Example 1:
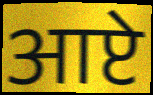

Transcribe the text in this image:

आप्टे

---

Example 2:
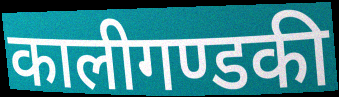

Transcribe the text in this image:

कालीगण्डकी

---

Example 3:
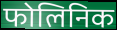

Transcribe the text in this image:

फोलिनिक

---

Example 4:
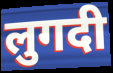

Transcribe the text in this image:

लुगदी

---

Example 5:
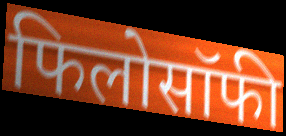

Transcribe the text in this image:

फिलोसॉफी